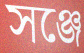
সঞ্জে